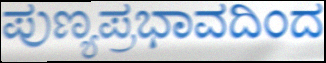
ಪುಣ್ಯಪ್ರಭಾವದಿಂದ